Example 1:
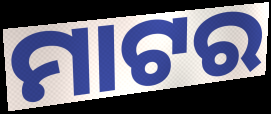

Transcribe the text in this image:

ମାଟର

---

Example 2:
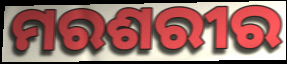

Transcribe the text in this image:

ମରଶରୀର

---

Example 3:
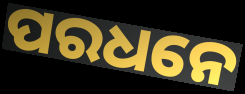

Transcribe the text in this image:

ପରଧନେ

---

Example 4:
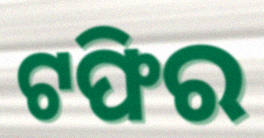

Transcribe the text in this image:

ଟଫିର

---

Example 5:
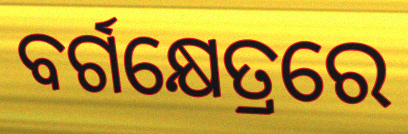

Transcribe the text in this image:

ବର୍ଗକ୍ଷେତ୍ରରେ